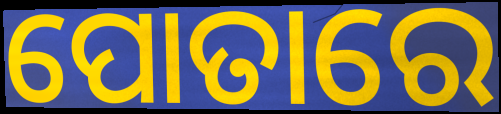
ପୋତାରେ